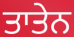
ਤਾਤੇਨ